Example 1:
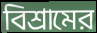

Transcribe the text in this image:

বিশ্রামের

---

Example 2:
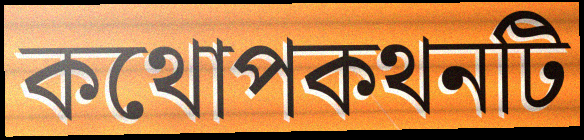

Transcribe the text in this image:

কথোপকথনটি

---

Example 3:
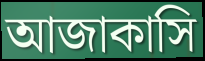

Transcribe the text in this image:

আজাকাসি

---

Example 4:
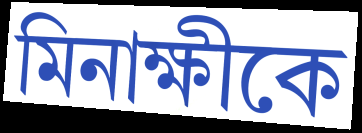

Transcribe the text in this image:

মিনাক্ষীকে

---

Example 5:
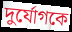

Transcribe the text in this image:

দুর্যোগকে